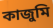
কাজুমি